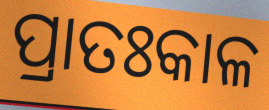
ପ୍ରାତଃକାଳ